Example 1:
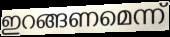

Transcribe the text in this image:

ഇറങ്ങണമെന്ന്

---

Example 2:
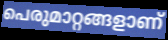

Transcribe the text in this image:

പെരുമാറ്റങ്ങളാണ്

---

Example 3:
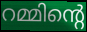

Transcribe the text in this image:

റമ്മിന്റെ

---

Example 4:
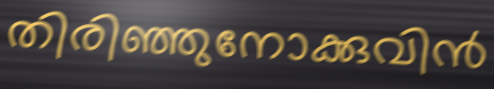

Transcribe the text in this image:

തിരിഞ്ഞുനോക്കുവിൻ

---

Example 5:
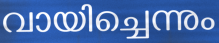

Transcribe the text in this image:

വായിച്ചെന്നും